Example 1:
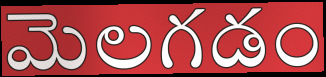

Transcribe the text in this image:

మెలగడం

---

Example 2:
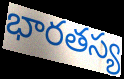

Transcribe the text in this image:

భారతస్య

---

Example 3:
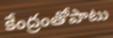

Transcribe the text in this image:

కేంద్రంతోపాటు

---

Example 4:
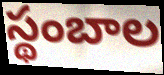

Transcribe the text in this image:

స్థంబాల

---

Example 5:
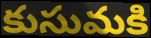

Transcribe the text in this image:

కుసుమకి